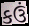
કઉં